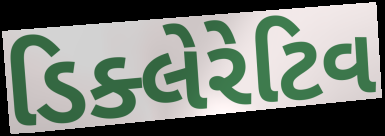
ડિક્લેરેટિવ